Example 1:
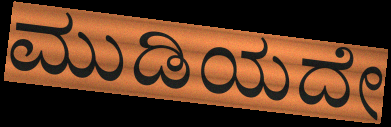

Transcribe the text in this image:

ಮುಡಿಯದೇ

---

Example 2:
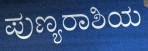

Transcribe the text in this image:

ಪುಣ್ಯರಾಶಿಯ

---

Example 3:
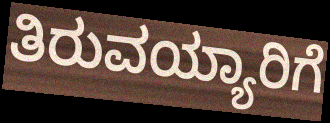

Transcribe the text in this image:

ತಿರುವಯ್ಯಾರಿಗೆ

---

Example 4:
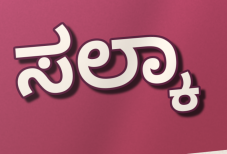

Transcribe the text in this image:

ಸಲ್ಕಾ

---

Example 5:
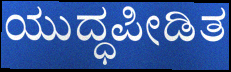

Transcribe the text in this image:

ಯುದ್ಧಪೀಡಿತ